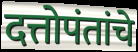
दत्तोपंतांचे